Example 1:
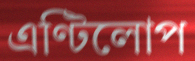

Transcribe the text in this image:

এণ্টিলোপ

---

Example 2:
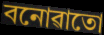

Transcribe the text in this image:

বনোৱাতো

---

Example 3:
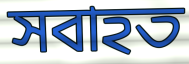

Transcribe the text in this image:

সবাহত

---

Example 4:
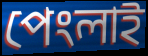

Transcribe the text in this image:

পেংলাই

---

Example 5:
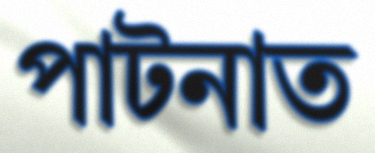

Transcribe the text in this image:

পাটনাত